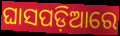
ଘାସପଡ଼ିଆରେ